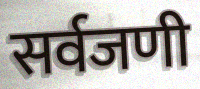
सर्वजणी